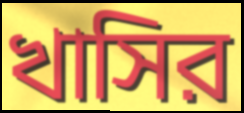
খাসির